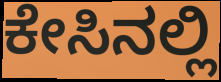
ಕೇಸಿನಲ್ಲಿ